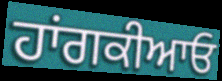
ਹਾਂਗਕੀਆਓ